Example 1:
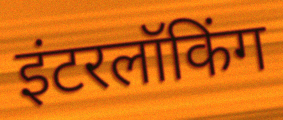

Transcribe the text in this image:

इंटरलॉकिंग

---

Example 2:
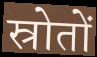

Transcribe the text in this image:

स्रोतों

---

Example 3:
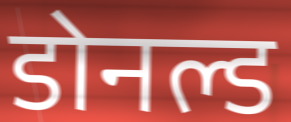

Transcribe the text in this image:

डोनल्‍ड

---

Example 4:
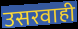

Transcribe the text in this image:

उसरवाही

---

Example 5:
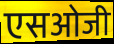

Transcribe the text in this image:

एसओजी